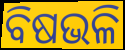
ବିଷଭଳି